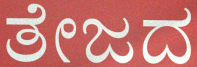
ತೇಜದ